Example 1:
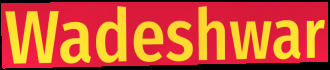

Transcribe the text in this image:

Wadeshwar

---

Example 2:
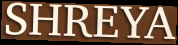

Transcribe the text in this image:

SHREYA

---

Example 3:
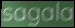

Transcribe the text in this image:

sagala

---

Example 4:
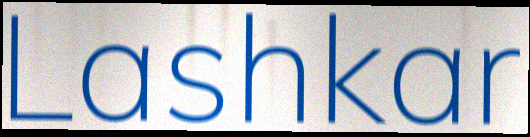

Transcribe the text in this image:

Lashkar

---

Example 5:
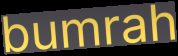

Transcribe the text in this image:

bumrah